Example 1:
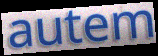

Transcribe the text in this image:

autem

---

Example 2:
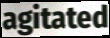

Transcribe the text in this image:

agitated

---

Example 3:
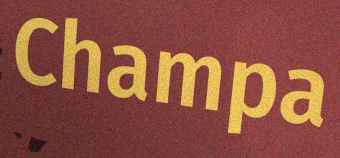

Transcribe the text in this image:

Champa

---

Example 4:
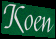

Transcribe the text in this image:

Koen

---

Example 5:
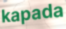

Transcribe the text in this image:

kapada